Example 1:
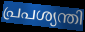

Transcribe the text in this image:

പ്രപശ്യന്തി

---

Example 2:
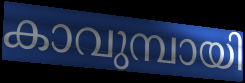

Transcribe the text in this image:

കാവുമ്പായി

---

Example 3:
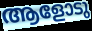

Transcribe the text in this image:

ആളോടു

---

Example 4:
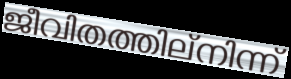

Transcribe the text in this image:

ജീവിതത്തില്നിന്ന്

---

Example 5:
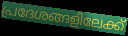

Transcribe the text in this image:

പ്രദേശങ്ങളിലേക്ക്